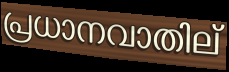
പ്രധാനവാതില്